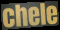
chele